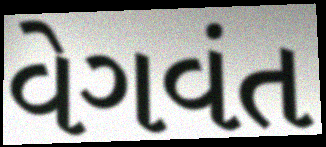
વેગવંત